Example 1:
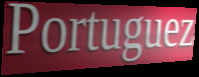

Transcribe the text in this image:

Portuguez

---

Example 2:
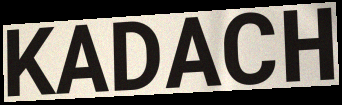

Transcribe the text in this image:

KADACH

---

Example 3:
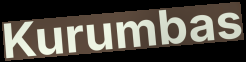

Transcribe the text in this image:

Kurumbas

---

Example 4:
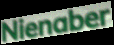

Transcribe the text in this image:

Nienaber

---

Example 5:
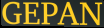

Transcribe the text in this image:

GEPAN